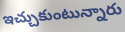
ఇచ్చుకుంటున్నారు